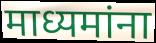
माध्यमांना